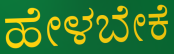
ಹೇಳಬೇಕೆ